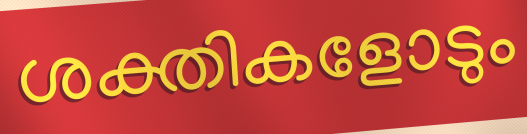
ശക്തികളോടും